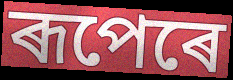
ৰূপেৰে